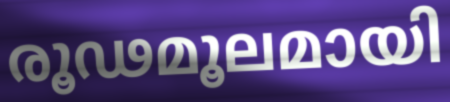
രൂഢമൂലമായി